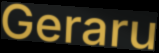
Geraru